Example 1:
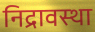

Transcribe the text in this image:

निद्रावस्था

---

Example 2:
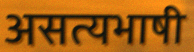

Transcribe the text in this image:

असत्यभाषी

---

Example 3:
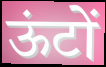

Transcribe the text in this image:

ऊंटों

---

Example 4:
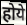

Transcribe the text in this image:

होये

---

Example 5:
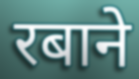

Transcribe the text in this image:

रबाने